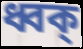
ধ্বক্